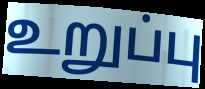
உறுப்பு